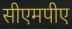
सीएमपीए